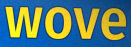
wove